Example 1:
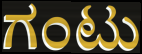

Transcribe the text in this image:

ಗಂಟು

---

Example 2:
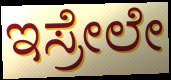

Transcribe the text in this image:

ಇಸ್ರೇಲೇ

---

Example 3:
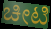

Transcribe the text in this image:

ಚೀಟಿ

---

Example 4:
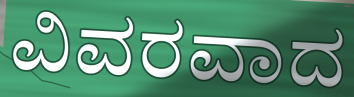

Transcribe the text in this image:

ವಿವರವಾದ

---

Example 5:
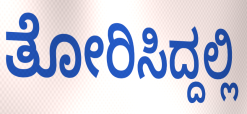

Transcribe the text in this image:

ತೋರಿಸಿದ್ದಲ್ಲಿ